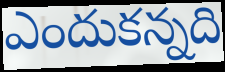
ఎందుకన్నది